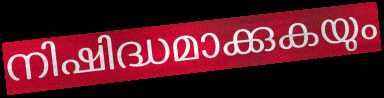
നിഷിദ്ധമാക്കുകയും